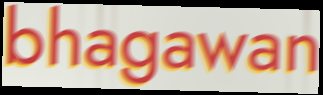
bhagawan